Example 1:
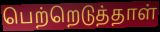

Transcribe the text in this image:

பெற்றெடுத்தாள்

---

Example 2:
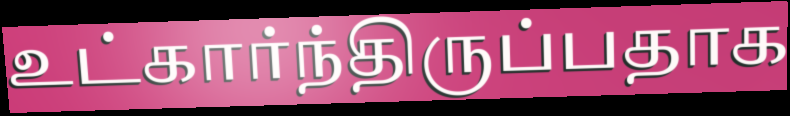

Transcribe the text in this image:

உட்கார்ந்திருப்பதாக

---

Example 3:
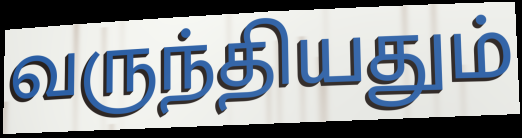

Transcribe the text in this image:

வருந்தியதும்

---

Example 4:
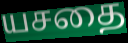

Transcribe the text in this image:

யசதை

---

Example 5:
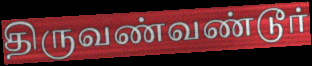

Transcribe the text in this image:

திருவண்வண்டூர்